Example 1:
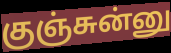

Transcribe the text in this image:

குஞ்சுன்னு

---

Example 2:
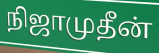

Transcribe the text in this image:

நிஜாமுதீன்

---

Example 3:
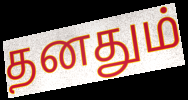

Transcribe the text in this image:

தனதும்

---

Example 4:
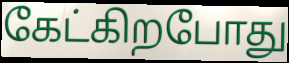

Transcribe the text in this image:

கேட்கிறபோது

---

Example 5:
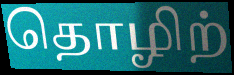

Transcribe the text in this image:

தொழிற்